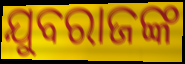
ଯୁବରାଜଙ୍କ